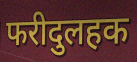
फरीदुलहक